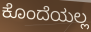
ಕೊಂದೆಯಲ್ಲ